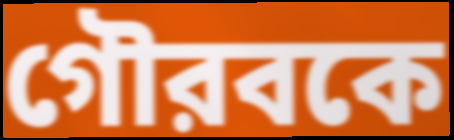
গৌরবকে